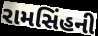
રામસિંહની